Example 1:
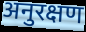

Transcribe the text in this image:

अनुरक्षण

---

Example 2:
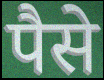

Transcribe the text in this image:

पैसे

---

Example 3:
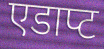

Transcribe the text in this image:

एडाप्ट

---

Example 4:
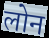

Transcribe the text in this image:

लोन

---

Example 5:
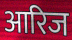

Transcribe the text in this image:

आरिज